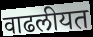
वाढलीयत